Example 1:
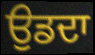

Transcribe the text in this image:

ਉਡਦਾ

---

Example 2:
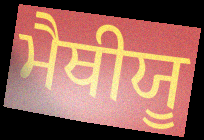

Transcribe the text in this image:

ਮੈਥੀਯੂ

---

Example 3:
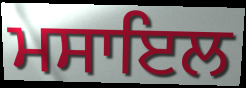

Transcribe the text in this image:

ਮਸਾਇਲ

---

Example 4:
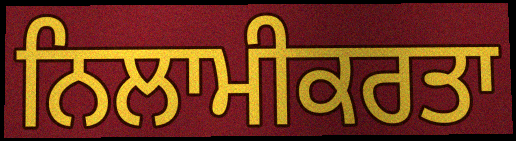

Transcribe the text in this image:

ਨਿਲਾਮੀਕਰਤਾ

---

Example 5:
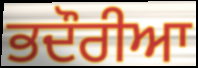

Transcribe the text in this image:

ਭਦੌਰੀਆ